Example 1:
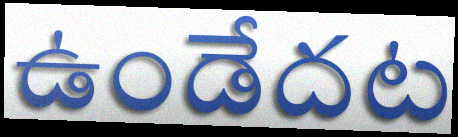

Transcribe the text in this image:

ఉండేదట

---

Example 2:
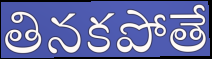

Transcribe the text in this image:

తినకపోతే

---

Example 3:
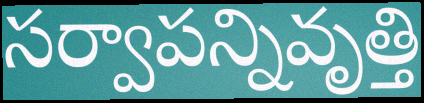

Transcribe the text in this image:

సర్వాపన్నివృత్తి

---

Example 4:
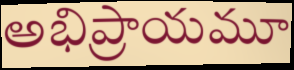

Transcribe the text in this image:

అభిప్రాయమూ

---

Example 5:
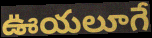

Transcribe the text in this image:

ఊయలూగే